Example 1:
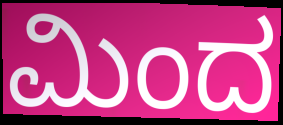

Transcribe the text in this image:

ಮಿಂದ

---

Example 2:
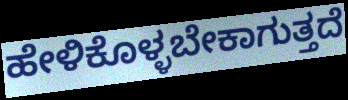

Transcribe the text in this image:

ಹೇಳಿಕೊಳ್ಳಬೇಕಾಗುತ್ತದೆ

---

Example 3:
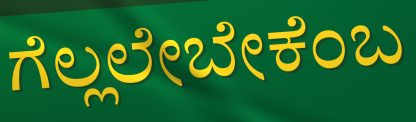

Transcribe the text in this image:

ಗೆಲ್ಲಲೇಬೇಕೆಂಬ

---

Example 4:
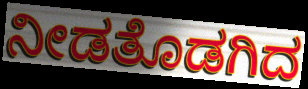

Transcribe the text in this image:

ನೀಡತೊಡಗಿದ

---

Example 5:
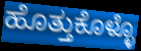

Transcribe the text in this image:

ಹೊತ್ತುಕೊಳ್ಳೊ